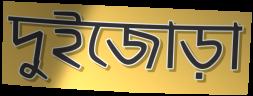
দুইজোড়া